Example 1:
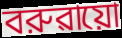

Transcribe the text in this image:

বৰুৱায়ো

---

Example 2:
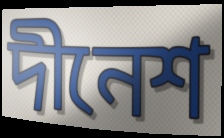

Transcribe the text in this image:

দীনেশ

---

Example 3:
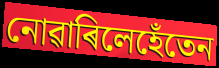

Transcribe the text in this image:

নোৱাৰিলেহেঁতেন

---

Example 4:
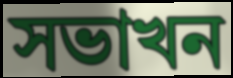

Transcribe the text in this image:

সভাখন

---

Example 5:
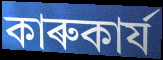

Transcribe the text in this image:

কাৰুকাৰ্য